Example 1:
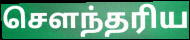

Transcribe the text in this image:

சௌந்தரிய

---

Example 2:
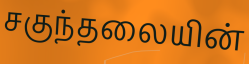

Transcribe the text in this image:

சகுந்தலையின்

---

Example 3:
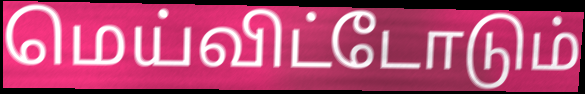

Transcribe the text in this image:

மெய்விட்டோடும்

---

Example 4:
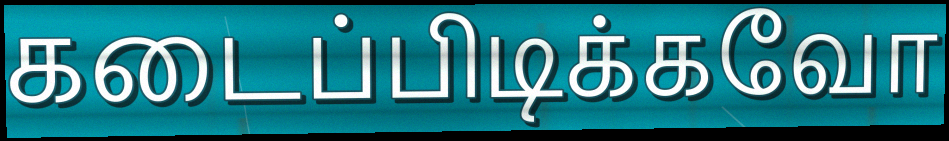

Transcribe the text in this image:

கடைப்பிடிக்கவோ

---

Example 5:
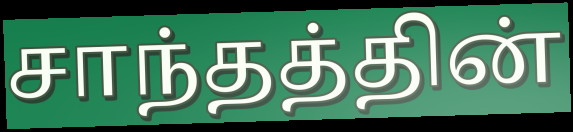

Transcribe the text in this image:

சாந்தத்தின்